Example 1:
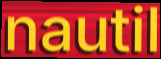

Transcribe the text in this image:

nautil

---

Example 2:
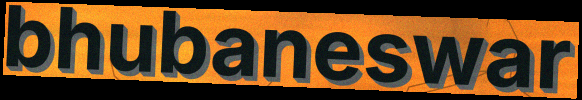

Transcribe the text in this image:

bhubaneswar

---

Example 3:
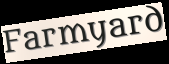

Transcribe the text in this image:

Farmyard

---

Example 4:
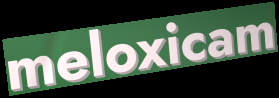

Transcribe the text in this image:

meloxicam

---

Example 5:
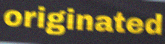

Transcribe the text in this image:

originated